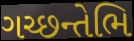
ગચ્છન્તેભિ